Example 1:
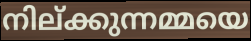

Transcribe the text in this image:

നില്ക്കുന്നമ്മയെ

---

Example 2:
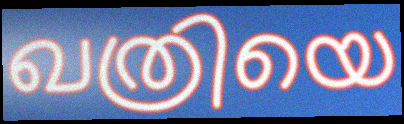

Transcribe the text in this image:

ഖത്രിയെ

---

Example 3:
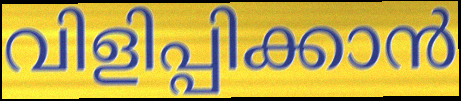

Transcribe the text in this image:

വിളിപ്പിക്കാൻ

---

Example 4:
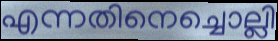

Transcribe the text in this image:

എന്നതിനെച്ചൊല്ലി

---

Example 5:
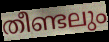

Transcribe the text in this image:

തീണ്ടലും